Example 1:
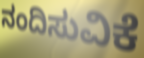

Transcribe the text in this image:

ನಂದಿಸುವಿಕೆ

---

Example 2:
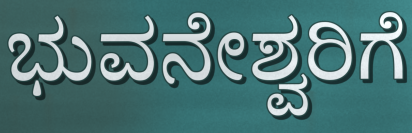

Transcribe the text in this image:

ಭುವನೇಶ್ವರಿಗೆ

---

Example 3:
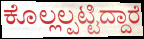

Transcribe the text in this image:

ಕೊಲ್ಲಲ್ಪಟ್ಟಿದ್ದಾರೆ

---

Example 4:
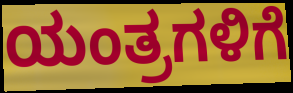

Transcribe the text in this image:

ಯಂತ್ರಗಳಿಗೆ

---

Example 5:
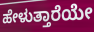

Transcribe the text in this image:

ಹೇಳುತ್ತಾರೆಯೇ